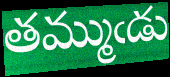
తమ్ముఁడు